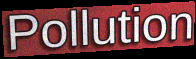
Pollution